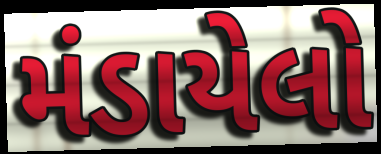
મંડાયેલો